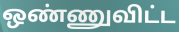
ஒண்ணுவிட்ட